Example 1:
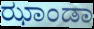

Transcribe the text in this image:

ಝಾಂಡಾ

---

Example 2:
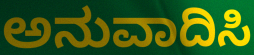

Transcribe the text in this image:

ಅನುವಾದಿಸಿ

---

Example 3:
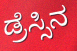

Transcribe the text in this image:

ಡ್ರೆಸ್ಸಿನ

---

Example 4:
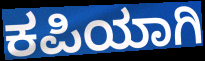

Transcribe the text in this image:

ಕಪಿಯಾಗಿ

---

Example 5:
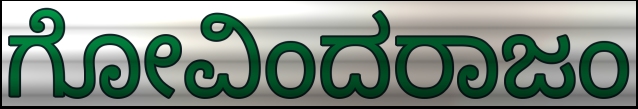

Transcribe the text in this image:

ಗೋವಿಂದರಾಜಂ